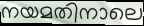
നയമതിനാലെ